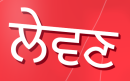
ਲੇਵਣ